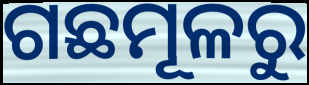
ଗଛମୂଳରୁ